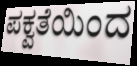
ಪಕ್ವತೆಯಿಂದ